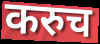
करुच